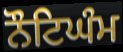
ਨੌਟਿਘੰਮ